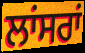
ਲਾਂਸਰਾਂ